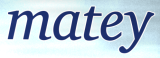
matey